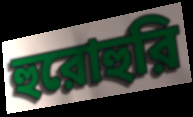
হুরোহুরি